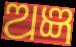
ଅଜ୍ଞ